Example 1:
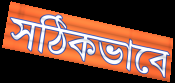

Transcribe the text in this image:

সঠিকভাবে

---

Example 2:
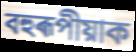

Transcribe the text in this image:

বহুৰূপীয়াক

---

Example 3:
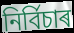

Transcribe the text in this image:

নিৰ্বিচাৰ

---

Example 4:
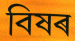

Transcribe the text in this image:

বিষৰ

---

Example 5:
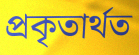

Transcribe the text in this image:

প্ৰকৃতাৰ্থত